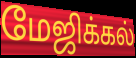
மேஜிக்கல்